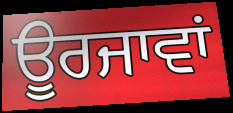
ਊਰਜਾਵਾਂ